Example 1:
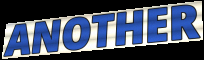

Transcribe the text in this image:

ANOTHER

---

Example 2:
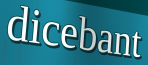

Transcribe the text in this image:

dicebant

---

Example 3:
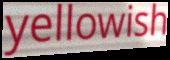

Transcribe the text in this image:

yellowish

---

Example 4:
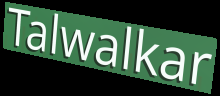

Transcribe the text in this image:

Talwalkar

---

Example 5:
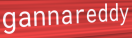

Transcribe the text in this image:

gannareddy